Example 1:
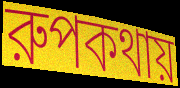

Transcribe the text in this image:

রুপকথায়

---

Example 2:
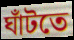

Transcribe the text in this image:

ঘাঁটতে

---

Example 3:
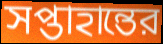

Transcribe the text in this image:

সপ্তাহান্তের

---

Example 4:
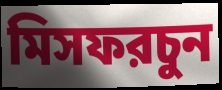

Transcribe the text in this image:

মিসফরচুন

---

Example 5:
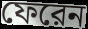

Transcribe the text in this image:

ফেরেন